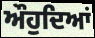
ਔਹੁਦਿਆਂ